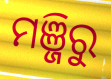
ମଞ୍ଜିରୁ